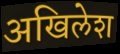
अखिलेश